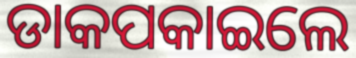
ଡାକପକାଇଲେ